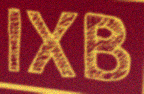
IXB